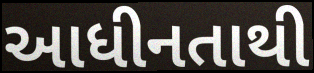
આધીનતાથી